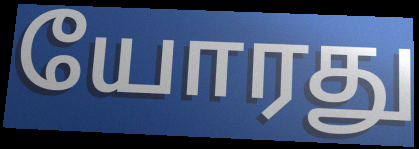
யோரது